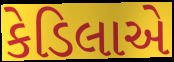
કેડિલાએ